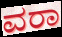
ವರಾ